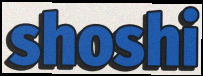
shoshi